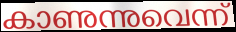
കാണുന്നുവെന്ന്